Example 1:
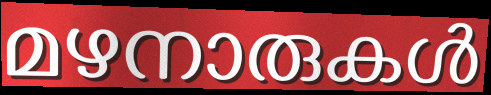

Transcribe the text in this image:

മഴനാരുകൾ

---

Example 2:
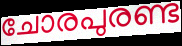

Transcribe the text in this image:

ചോരപുരണ്ട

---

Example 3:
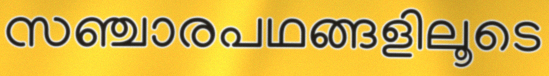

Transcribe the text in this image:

സഞ്ചാരപഥങ്ങളിലൂടെ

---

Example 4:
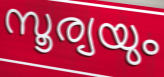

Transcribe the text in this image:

സൂര്യയും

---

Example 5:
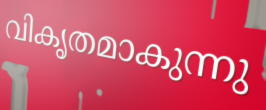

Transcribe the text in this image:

വികൃതമാകുന്നു